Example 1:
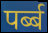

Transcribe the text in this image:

पर्ब्ब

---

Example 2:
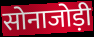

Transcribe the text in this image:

सोनाजोड़ी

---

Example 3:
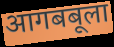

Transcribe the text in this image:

आगबबूला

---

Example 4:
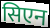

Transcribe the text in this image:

सिएन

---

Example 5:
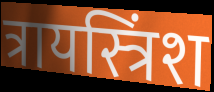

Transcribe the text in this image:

त्रायस्त्रिंश